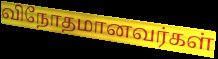
விநோதமானவர்கள்